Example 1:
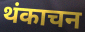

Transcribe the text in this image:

थंकाचन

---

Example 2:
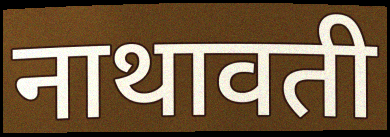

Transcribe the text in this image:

नाथावती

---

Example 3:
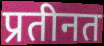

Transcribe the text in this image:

प्रतीनत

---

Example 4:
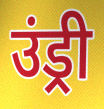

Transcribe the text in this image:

उंड्री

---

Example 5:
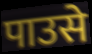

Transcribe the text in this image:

पाउसे